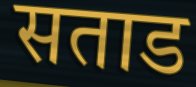
सताड